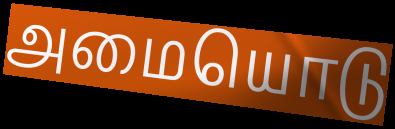
அமையொடு